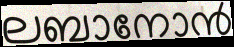
ലബാനോൻ